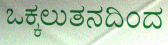
ಒಕ್ಕಲುತನದಿಂದ